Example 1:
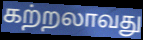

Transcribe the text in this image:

கற்றலாவது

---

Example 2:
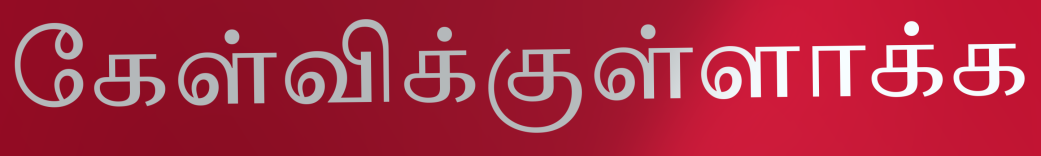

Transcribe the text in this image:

கேள்விக்குள்ளாக்க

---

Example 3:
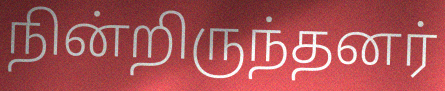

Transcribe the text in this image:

நின்றிருந்தனர்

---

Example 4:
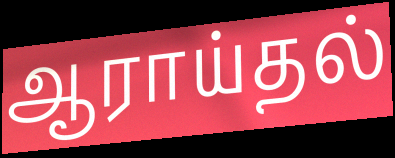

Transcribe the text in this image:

ஆராய்தல்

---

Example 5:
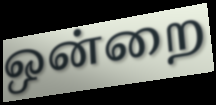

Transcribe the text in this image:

ஒன்றை